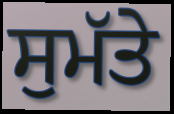
ਸੁਮੱਤੇ